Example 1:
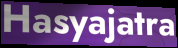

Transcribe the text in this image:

Hasyajatra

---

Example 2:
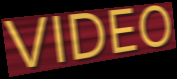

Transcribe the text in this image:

VIDEO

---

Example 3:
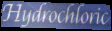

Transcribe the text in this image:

Hydrochloric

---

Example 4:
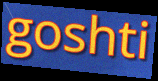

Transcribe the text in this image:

goshti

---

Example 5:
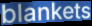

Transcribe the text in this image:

blankets